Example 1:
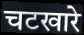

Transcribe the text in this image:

चटखारे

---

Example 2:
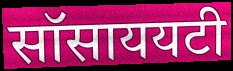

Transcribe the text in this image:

सॉसाययटी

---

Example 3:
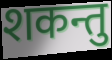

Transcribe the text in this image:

शकन्तु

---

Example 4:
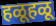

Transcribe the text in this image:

हळूहळू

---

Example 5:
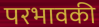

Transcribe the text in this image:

परभावकी